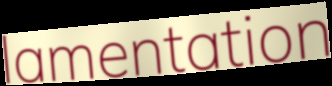
lamentation